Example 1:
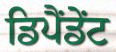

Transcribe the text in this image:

ਡਿਪੈਂਡੇਂਟ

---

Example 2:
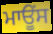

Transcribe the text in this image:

ਮਾਊਂਸ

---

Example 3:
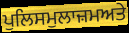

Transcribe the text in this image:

ਪੁਲਿਸਮੁਲਾਜ਼ਮਅਤੇ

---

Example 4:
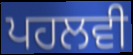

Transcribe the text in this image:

ਪਹਲਵੀ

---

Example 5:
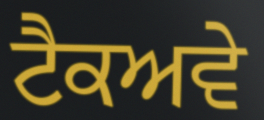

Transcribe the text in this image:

ਟੈਕਅਵੇ